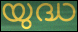
യുദ്ധ